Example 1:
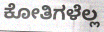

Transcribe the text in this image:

ಕೋತಿಗಳೆಲ್ಲ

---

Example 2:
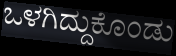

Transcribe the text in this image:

ಒಳಗಿದ್ದುಕೊಂಡು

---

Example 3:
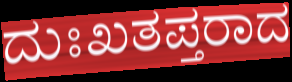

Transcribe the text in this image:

ದುಃಖತಪ್ತರಾದ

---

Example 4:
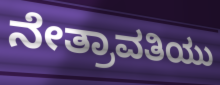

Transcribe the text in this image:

ನೇತ್ರಾವತಿಯು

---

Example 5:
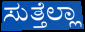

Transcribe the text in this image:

ಸುತ್ತೆಲ್ಲಾ